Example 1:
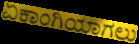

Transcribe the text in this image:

ಏಕಾಂಗಿಯಾಗಲು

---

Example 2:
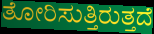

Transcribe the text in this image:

ತೋರಿಸುತ್ತಿರುತ್ತದೆ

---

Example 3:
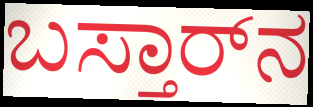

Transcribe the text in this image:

ಬಸ್ತಾರ್‌ನ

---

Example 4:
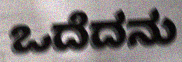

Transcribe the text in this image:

ಒದೆದನು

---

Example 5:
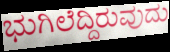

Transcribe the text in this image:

ಭುಗಿಲೆದ್ದಿರುವುದು